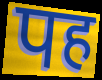
पह